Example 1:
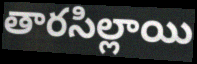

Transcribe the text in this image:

తారసిల్లాయి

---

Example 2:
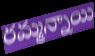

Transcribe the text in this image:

రమ్మన్నాయి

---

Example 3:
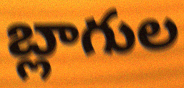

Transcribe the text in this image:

బ్లాగుల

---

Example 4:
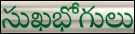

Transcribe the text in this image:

సుఖభోగులు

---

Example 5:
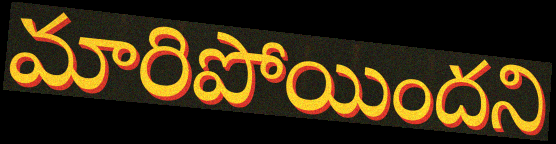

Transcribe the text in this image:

మారిపోయిందని